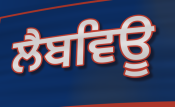
ਲੈਬਵਿਊ